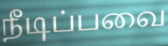
நீடிப்பவை